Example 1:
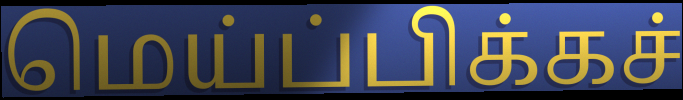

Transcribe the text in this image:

மெய்ப்பிக்கச்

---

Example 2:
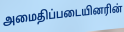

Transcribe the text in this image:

அமைதிப்படையினரின்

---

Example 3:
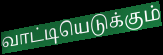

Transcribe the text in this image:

வாட்டியெடுக்கும்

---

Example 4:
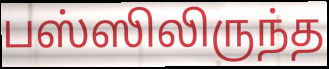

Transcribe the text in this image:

பஸ்ஸிலிருந்த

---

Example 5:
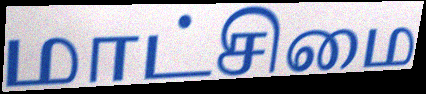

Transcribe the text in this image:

மாட்சிமை